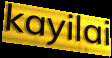
kayilai